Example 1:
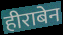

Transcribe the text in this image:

हीराबेन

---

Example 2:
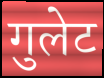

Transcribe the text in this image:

गुलेट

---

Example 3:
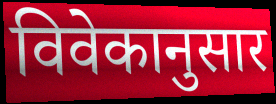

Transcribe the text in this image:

विवेकानुसार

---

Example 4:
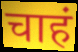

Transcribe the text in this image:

चाहं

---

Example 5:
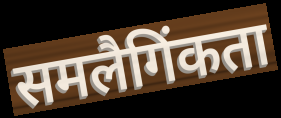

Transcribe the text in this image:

समलैगिंकता